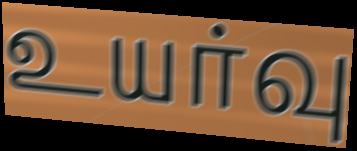
உயர்வு